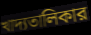
খাদ্যতালিকার